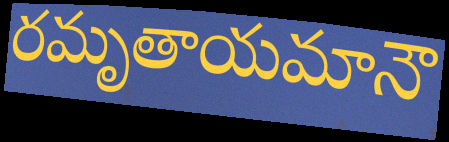
రమృతాయమానౌ